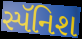
સ્પૅનિશ